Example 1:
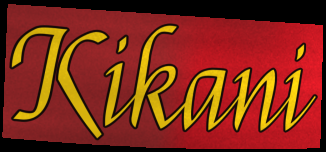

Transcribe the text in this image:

Kikani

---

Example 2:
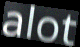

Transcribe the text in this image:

alot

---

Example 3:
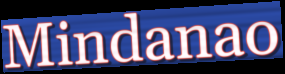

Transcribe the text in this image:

Mindanao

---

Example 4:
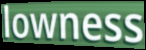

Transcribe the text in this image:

lowness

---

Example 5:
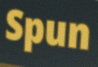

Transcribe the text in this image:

Spun